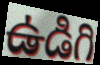
ఉడిగి